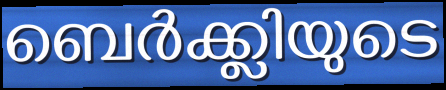
ബെർക്ക്ലിയുടെ